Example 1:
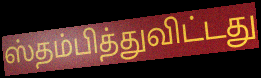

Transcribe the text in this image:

ஸ்தம்பித்துவிட்டது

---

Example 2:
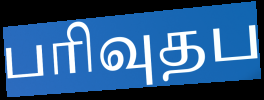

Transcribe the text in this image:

பரிவுதப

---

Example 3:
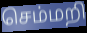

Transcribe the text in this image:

செம்மறி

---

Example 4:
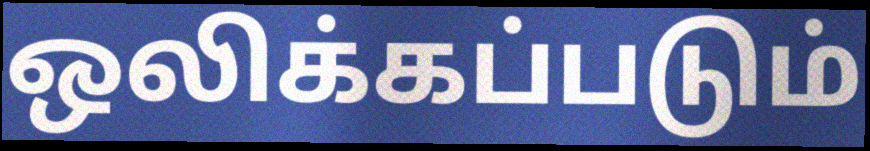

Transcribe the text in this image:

ஒலிக்கப்படும்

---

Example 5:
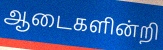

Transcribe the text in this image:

ஆடைகளின்றி